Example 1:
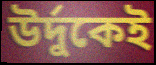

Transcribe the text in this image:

উর্দুকেই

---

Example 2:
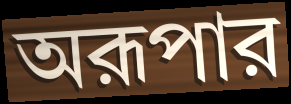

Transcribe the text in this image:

অরূপার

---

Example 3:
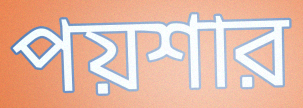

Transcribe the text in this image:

পয়শার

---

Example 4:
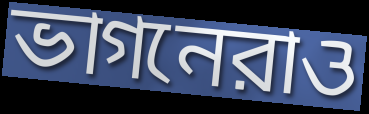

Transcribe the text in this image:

ভাগনেরাও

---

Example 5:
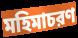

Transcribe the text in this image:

মহিমাচরণ